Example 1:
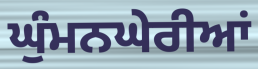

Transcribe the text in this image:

ਘੁੰਮਨਘੇਰੀਆਂ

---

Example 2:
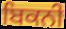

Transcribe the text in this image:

ਬਿਕਨੀ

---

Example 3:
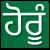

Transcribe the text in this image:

ਹੋਰੂੰ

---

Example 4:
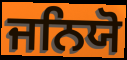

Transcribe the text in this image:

ਜਨਿਯੋ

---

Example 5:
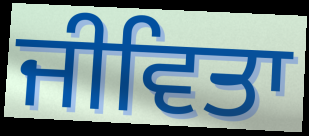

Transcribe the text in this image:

ਜੀਵਿਤਾ